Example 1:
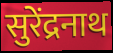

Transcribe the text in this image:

सुरेंद्रनाथ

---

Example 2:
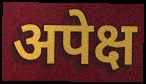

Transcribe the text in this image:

अपेक्ष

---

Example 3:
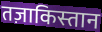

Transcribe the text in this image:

तज़ाकिस्तान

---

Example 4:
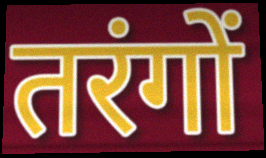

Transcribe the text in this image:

तरंगों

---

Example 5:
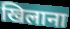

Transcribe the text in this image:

खिलाना